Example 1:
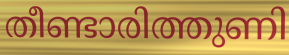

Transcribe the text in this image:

തീണ്ടാരിത്തുണി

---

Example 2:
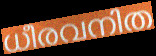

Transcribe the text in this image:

ധീരവനിത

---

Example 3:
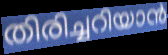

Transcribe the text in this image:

തിരിച്ചറിയാൻ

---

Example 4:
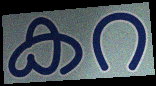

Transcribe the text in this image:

കറ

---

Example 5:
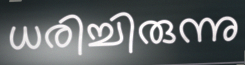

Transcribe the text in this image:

ധരിച്ചിരുന്നു